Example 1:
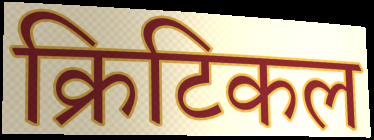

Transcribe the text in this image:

क्रिटिकल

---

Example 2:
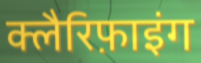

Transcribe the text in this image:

क्लैरिफ़ाइंग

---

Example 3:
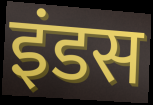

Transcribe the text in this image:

इंडस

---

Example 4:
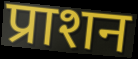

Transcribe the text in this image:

प्राशन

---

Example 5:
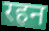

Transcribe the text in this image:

रहन